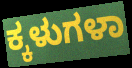
ಕ್ಕಳುಗಳಾ